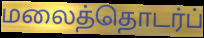
மலைத்தொடர்ப்